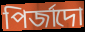
পিৰ্জাদো